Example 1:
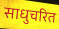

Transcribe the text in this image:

साधुचरित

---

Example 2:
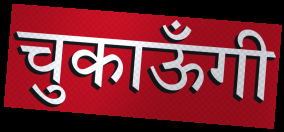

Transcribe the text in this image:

चुकाऊँगी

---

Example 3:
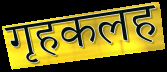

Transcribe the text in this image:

गृहकलह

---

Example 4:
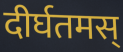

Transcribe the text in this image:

दीर्घतमस्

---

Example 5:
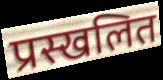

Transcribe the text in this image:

प्रस्खलित